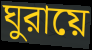
ঘুরায়ে